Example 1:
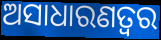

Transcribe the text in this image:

ଅସାଧାରଣତ୍ୱର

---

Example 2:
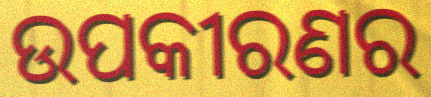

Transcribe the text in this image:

ଉପକୀରଣର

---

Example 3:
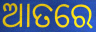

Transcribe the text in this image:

ଆତରେ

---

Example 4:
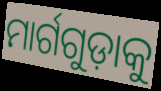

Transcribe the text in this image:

ମାର୍ଗଗୁଡ଼ାକୁ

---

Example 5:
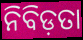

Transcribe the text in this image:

ନିବିଡ଼ତା